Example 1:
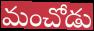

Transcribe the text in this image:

మంచోడు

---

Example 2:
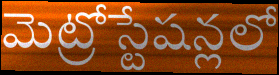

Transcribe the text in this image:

మెట్రోస్టేషన్లలో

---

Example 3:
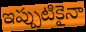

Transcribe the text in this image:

ఇప్పుటికైనా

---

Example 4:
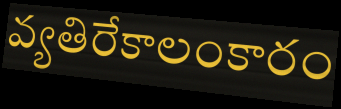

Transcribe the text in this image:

వ్యతిరేకాలంకారం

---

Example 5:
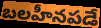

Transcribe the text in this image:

బలహీనపడే